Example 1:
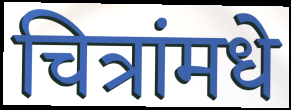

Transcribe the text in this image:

चित्रांमधे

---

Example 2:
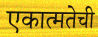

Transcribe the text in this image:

एकात्मतेची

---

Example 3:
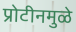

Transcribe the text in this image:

प्रोटीनमुळे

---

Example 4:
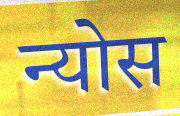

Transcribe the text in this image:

न्योस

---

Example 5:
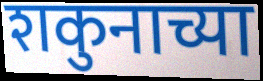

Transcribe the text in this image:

शकुनाच्या